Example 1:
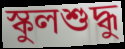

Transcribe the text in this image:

স্কুলশুদ্ধু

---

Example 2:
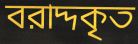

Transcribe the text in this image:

বরাদ্দকৃত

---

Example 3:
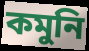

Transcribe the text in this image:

কমুনি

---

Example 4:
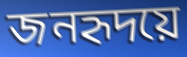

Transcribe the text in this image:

জনহৃদয়ে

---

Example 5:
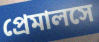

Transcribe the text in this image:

প্রেমালসে